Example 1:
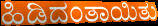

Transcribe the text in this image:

ಹಿಡಿದಂತಾಯಿತು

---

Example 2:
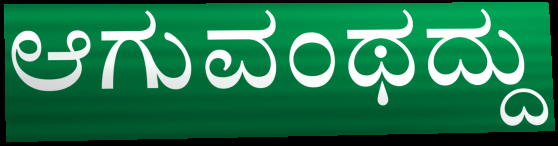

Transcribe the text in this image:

ಆಗುವಂಥದ್ದು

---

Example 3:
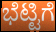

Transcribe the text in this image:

ಭೆಟ್ಟಿಗೆ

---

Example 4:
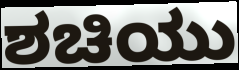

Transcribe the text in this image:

ಶಚಿಯು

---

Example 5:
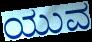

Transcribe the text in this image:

ಯುವ